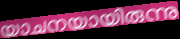
യാചനയായിരുന്നു